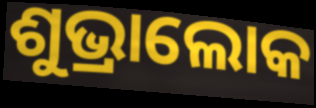
ଶୁଭ୍ରାଲୋକ